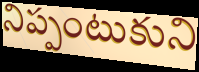
నిప్పంటుకుని